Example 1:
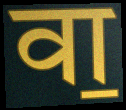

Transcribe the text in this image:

वा॒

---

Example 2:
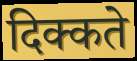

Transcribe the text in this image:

दिक्कते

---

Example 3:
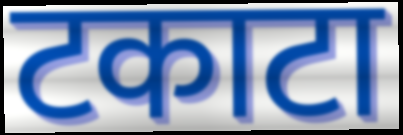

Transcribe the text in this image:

टकाटा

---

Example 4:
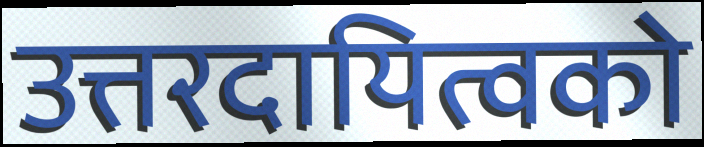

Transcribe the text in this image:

उत्तरदायित्वको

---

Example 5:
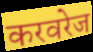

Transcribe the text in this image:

करवरेज